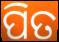
ପିତ